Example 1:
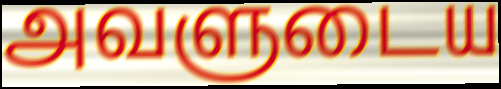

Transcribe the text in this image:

அவளுடைய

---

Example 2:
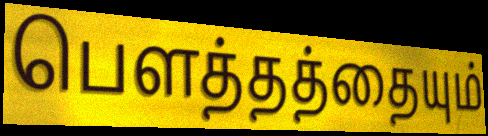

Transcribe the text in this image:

பெளத்தத்தையும்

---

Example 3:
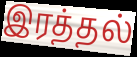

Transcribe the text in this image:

இரத்தல்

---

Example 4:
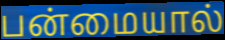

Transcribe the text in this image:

பன்மையால்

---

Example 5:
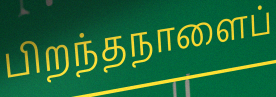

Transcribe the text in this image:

பிறந்தநாளைப்